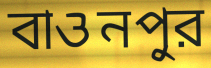
বাওনপুর